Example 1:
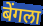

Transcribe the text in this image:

बेंगला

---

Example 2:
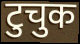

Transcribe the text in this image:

टुचुक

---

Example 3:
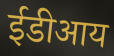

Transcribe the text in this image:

ईडीआय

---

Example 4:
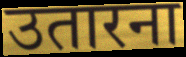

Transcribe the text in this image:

उतारना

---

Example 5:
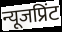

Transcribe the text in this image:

न्यूजप्रिंट